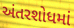
અંતરશોધમાં